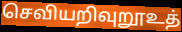
செவியறிவுறூஉத்